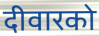
दीवारको